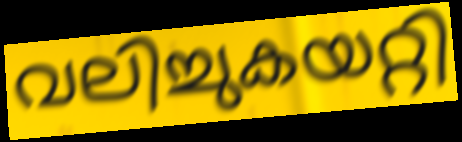
വലിച്ചുകയറ്റി